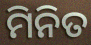
ମିନିତ